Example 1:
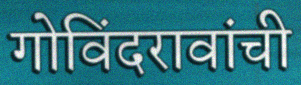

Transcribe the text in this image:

गोविंदरावांची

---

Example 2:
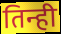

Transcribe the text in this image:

तिन्ही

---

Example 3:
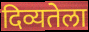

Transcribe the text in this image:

दिव्यतेला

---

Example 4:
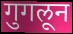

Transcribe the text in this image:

गुगलून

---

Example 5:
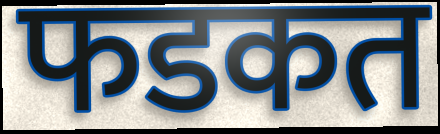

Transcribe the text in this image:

फडकत